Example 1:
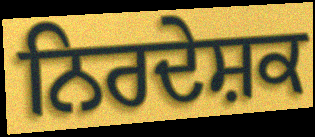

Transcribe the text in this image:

ਨਿਰਦੇਸ਼ਕ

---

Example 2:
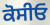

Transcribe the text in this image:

ਕੋਸੀਓ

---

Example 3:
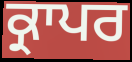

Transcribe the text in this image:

ਕ੍ਰਾਪਰ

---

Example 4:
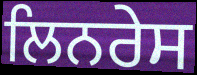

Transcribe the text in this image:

ਲਿਨਰੇਸ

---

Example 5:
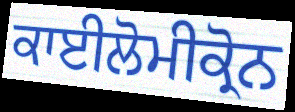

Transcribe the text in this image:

ਕਾਈਲੋਮੀਕ੍ਰੋਨ